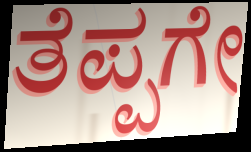
ತೆಪ್ಪಗೇ